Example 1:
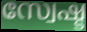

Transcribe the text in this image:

സ്വേഷ്ട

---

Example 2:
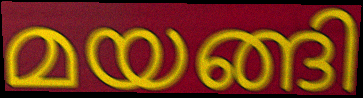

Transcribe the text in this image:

മയങ്ങി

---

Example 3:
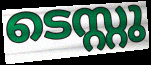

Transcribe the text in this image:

ടെസ്റ്റു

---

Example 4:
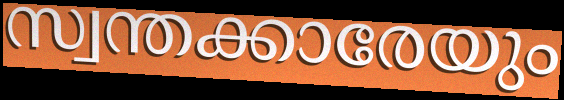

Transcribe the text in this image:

സ്വന്തക്കാരേയും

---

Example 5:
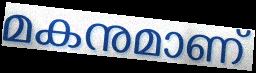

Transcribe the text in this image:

മകനുമാണ്